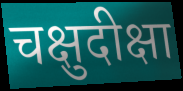
चक्षुदीक्षा